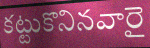
కట్టుకొనినవారై